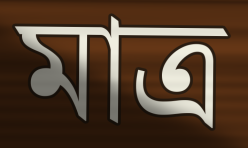
মাত্ৰ